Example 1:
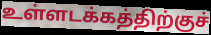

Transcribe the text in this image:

உள்ளடக்கத்திற்குச்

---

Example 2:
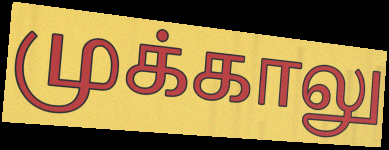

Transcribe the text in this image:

முக்காலு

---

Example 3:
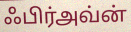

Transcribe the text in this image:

ஃபிர்அவ்ன்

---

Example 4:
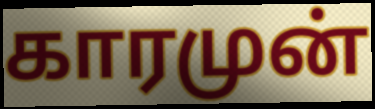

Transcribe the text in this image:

காரமுன்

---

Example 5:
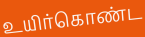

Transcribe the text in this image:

உயிர்கொண்ட